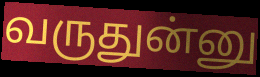
வருதுன்னு